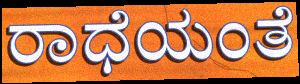
ರಾಧೆಯಂತೆ